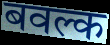
बवल्क